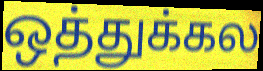
ஒத்துக்கல